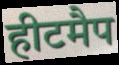
हीटमैप